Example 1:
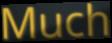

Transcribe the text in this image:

Much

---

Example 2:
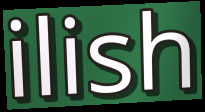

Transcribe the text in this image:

ilish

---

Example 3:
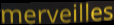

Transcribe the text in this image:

merveilles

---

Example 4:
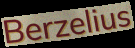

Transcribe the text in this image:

Berzelius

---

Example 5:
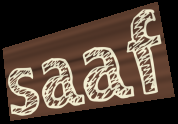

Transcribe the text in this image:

saaf